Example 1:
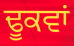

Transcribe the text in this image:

ਢੂਕਵਾਂ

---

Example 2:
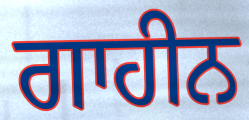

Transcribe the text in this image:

ਗਾਹੀਨ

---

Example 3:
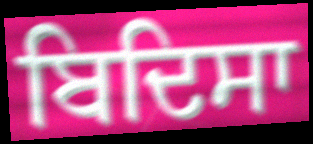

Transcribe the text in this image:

ਬਿਦਿਸਾ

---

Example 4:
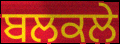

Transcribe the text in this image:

ਬਲਕਲੇ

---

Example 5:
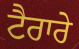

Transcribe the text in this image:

ਟੈਰਾਰੇ